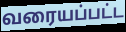
வரையப்பட்ட